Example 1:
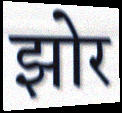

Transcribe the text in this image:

झोर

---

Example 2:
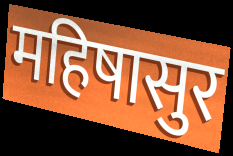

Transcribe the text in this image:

महिषासुर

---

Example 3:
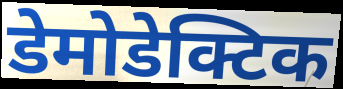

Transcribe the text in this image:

डेमोडेक्टिक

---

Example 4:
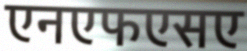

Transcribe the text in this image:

एनएफएसए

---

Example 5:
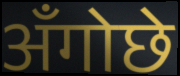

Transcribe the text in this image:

अँगोछे